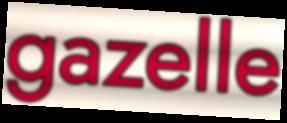
gazelle